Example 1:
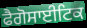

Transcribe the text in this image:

ਫੈਗੋਸਾਈਟਿਕ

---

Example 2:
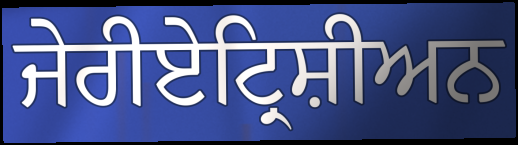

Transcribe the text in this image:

ਜੇਰੀਏਟ੍ਰਿਸ਼ੀਅਨ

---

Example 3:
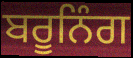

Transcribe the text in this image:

ਬਰੂਨਿੰਗ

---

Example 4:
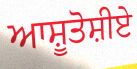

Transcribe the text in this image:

ਆਸ਼ੂਤੋਸ਼ੀਏ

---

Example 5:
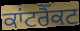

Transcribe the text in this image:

ਕਾਂਟਰੈੱਕਟ